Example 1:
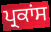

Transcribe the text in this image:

ਪ੍ਰਕਾਂਸ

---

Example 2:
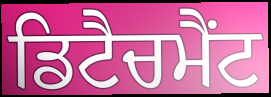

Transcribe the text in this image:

ਡਿਟੈਚਮੈਂਟ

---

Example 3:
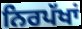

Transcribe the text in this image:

ਨਿਰਪੱਖਾਂ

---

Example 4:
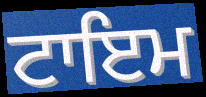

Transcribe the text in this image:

ਟਾਇਮ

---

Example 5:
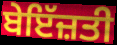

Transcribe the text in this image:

ਬੇਇੱਜ਼ਤੀ